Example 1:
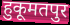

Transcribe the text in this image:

हुकूमतपुर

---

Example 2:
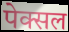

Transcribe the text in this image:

पेक्सल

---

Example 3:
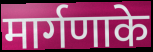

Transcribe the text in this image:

मार्गणाके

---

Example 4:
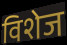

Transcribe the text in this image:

विशेज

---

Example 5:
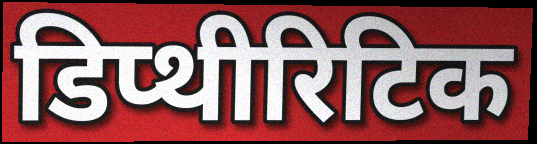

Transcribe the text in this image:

डिप्थीरिटिक